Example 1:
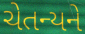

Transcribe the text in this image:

ચેતન્યને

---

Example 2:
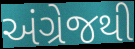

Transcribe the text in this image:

અંગ્રેજથી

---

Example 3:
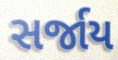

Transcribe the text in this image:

સર્જાય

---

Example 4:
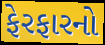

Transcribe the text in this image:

ફેરફારનો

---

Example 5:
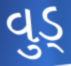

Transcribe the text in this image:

વુડ્